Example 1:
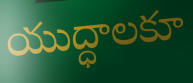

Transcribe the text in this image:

యుద్ధాలకూ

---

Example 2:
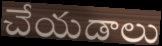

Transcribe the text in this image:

చేయడాలు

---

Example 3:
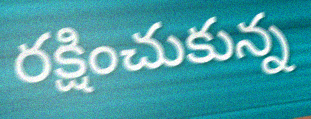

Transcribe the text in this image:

రక్షించుకున్న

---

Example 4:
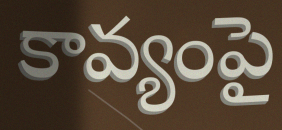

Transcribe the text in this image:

కావ్యంపై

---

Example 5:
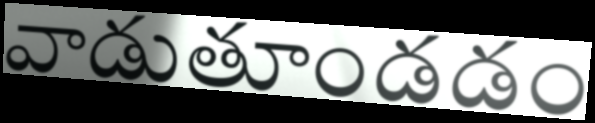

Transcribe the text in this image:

వాడుతూండడం